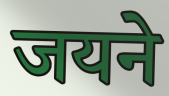
जयने